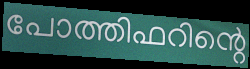
പോത്തിഫറിന്റെ